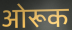
ओरूक